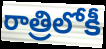
రాత్రిలోకీ